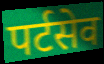
पर्टसेव